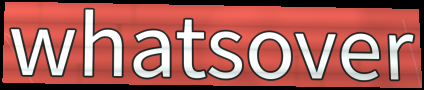
whatsover